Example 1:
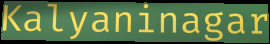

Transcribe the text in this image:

Kalyaninagar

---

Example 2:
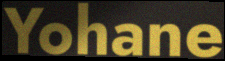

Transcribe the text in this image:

Yohane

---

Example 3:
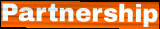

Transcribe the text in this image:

Partnership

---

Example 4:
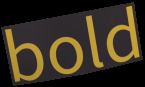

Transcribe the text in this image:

bold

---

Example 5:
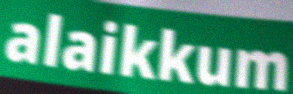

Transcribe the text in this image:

alaikkum